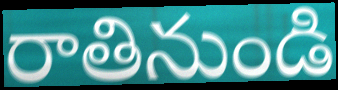
రాతినుండి